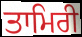
ਤਾਮਿਰੀ